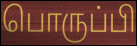
பொருப்பி